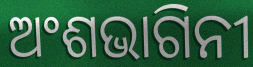
ଅଂଶଭାଗିନୀ